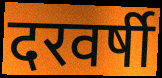
दरवर्षी